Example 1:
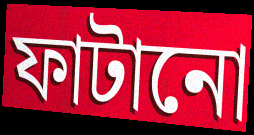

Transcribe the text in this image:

ফাটানো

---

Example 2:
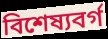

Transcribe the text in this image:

বিশেষ্যবর্গ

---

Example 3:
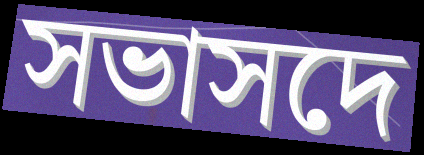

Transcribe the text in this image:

সভাসদে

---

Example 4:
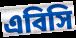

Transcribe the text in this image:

এবিসি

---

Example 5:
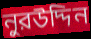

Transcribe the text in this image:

নুরউদ্দিন